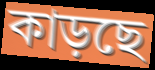
কাড়ছে